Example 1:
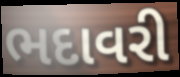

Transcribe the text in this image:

ભદાવરી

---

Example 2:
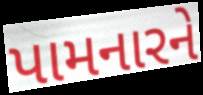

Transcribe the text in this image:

પામનારને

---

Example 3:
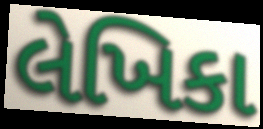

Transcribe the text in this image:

લેખિકા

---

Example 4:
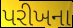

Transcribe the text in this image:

પરીખના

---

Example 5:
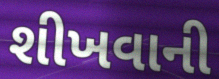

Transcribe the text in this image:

શીખવાની